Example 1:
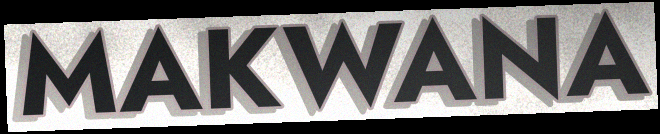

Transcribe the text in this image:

MAKWANA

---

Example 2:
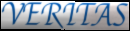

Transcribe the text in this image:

VERITAS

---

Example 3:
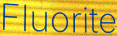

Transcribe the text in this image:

Fluorite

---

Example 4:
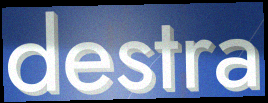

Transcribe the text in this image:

destra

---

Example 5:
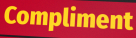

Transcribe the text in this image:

Compliment